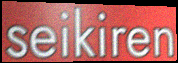
seikiren